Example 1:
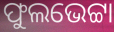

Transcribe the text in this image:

ଫୁଲଭେଟ୍ଟା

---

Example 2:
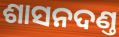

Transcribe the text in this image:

ଶାସନଦଣ୍ତ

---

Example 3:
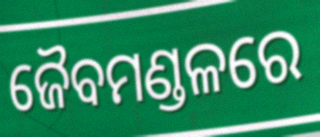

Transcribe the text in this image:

ଜୈବମଣ୍ଡଳରେ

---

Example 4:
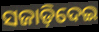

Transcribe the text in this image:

ସଜାଡ଼ିଦେଇ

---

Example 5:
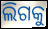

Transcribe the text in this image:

ଲିଗକୁ